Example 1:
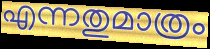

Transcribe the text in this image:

എന്നതുമാത്രം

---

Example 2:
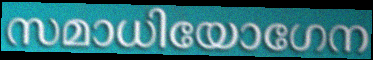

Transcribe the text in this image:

സമാധിയോഗേന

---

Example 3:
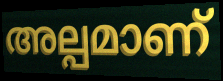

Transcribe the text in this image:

അല്പമാണ്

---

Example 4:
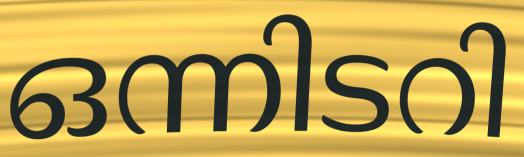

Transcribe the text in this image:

ഒന്നിടറി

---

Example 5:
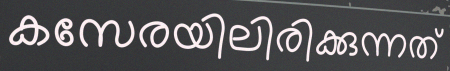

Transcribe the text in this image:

കസേരയിലിരിക്കുന്നത്